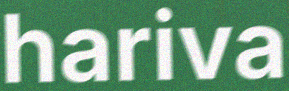
hariva